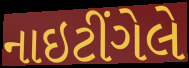
નાઇટીંગેલે